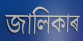
জালিকাৰ